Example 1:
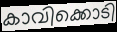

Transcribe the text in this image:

കാവിക്കൊടി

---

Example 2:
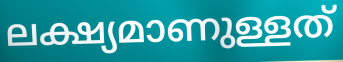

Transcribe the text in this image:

ലക്ഷ്യമാണുള്ളത്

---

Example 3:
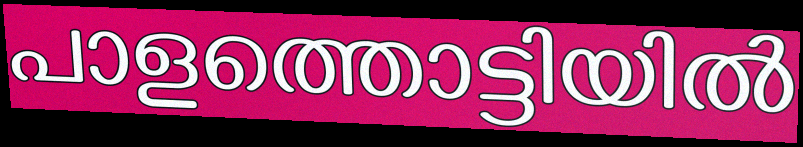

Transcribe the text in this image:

പാളത്തൊട്ടിയിൽ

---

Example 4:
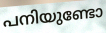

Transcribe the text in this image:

പനിയുണ്ടോ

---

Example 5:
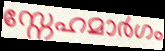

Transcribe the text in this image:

സ്നേഹമാർഗം